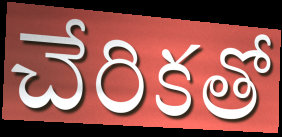
చేరికతో